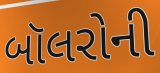
બૉલરોની